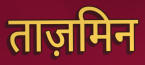
ताज़मिन